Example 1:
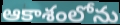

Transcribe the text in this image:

ఆకాశంలోను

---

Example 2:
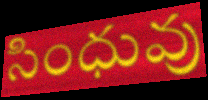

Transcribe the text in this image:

సింధువు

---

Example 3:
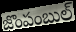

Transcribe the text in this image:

జొంపంబుల్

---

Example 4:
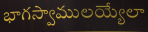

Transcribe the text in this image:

భాగస్వాములయ్యేలా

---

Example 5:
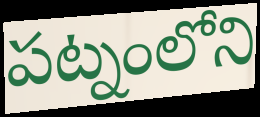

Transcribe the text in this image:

పట్నంలోని